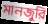
মানজুরি